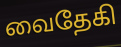
வைதேகி